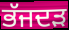
ਭੱਜਦੜ